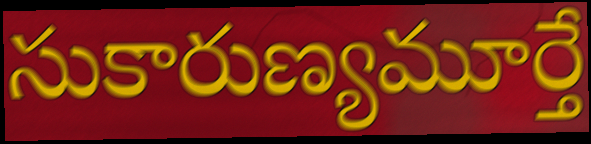
సుకారుణ్యమూర్తే